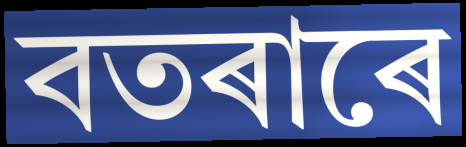
বতৰাৰে